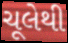
ચૂલેથી